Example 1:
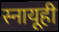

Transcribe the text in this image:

स्नायूही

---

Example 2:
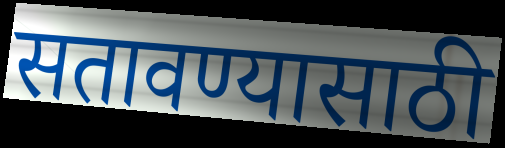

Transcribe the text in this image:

सतावण्यासाठी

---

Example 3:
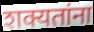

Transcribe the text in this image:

शक्यतांना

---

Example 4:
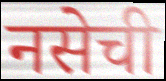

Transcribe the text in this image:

नसेची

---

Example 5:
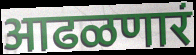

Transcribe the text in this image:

आढळणारं